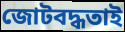
জোটবদ্ধতাই